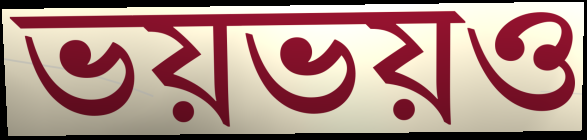
ভয়ভয়ও